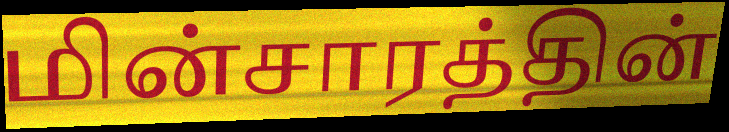
மின்சாரத்தின்